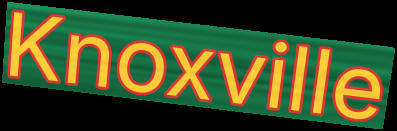
Knoxville